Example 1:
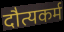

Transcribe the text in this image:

दौत्यकर्म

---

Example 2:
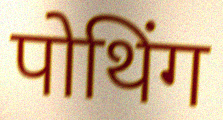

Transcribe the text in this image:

पोथिंग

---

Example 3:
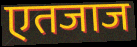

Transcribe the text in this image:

एतजाज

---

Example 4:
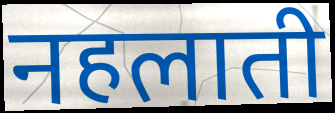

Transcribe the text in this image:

नहलाती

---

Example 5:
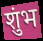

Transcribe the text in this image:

शुंभ